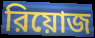
রিয়োজ